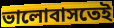
ভালোবাসতেই